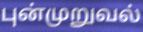
புன்முறுவல்